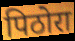
पिठोरा